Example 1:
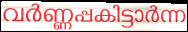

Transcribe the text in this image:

വർണ്ണപ്പകിട്ടാർന്ന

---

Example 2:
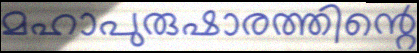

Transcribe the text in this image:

മഹാപുരുഷാരത്തിന്റെ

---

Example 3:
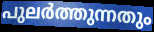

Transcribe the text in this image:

പുലർത്തുന്നതും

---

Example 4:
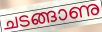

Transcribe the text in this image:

ചടങ്ങാണു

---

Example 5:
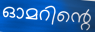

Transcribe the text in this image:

ഓമറിന്റെ